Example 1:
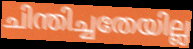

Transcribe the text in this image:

ചിന്തിച്ചതേയില്ല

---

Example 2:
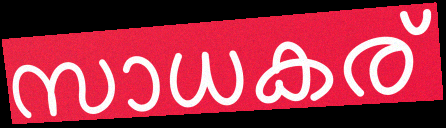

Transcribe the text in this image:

സാധകര്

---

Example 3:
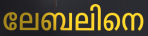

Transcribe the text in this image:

ലേബലിനെ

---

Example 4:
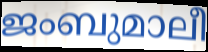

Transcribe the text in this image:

ജംബുമാലീ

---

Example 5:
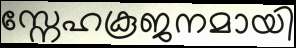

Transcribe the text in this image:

സ്നേഹകൂജനമായി